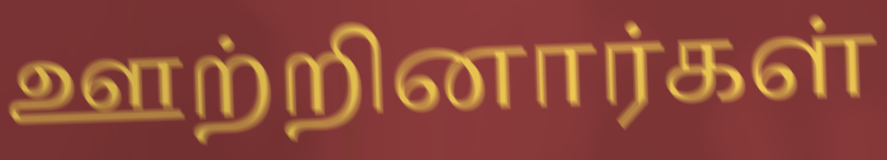
ஊற்றினார்கள்